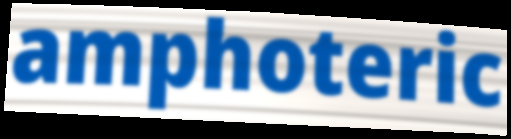
amphoteric